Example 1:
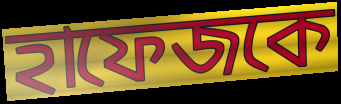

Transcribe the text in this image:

হাফেজকে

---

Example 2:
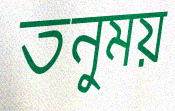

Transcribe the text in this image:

তনুময়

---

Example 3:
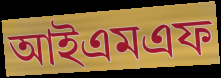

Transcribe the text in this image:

আইএমএফ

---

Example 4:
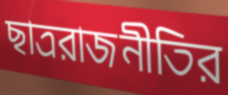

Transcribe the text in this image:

ছাত্ররাজনীতির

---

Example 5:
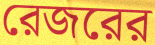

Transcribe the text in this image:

রেজরের